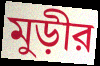
মুড়ীর